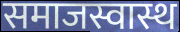
समाजस्वास्थ